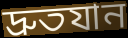
দ্রুতযান